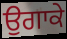
ਉਗਾਕੇ